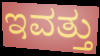
ಇವತ್ತು